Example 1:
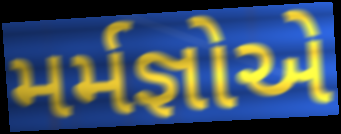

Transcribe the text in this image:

મર્મજ્ઞોએ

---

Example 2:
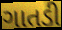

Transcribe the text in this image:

ગાતડી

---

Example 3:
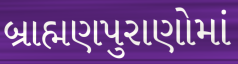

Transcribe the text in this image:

બ્રાહ્મણપુરાણોમાં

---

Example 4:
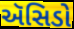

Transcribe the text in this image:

ઍસિડો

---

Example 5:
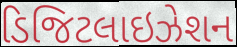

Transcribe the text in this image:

ડિજિટલાઇઝેશન